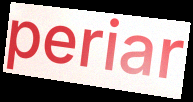
periar